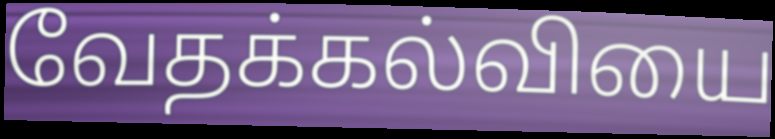
வேதக்கல்வியை